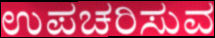
ಉಪಚರಿಸುವ